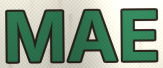
MAE